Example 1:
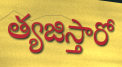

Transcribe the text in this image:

త్యజిస్తారో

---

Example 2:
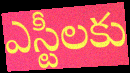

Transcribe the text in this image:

ఎస్టీలకు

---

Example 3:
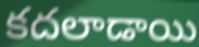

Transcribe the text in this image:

కదలాడాయి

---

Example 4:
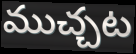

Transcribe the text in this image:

ముచ్చట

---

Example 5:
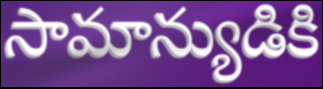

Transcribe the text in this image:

సామాన్యుడికి